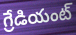
గ్రేడియంట్